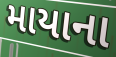
માયાના